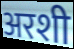
अरशी